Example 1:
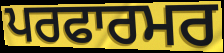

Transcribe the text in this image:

ਪਰਫਾਰਮਰ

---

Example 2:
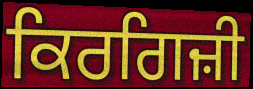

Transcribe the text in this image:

ਕਿਰਗਿਜ਼ੀ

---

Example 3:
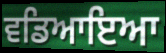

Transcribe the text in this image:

ਵਡਿਆਇਆ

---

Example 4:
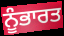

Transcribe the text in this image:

ਨੂੰਭਾਰਤ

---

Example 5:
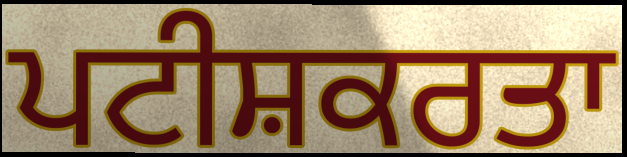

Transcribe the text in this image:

ਪਟੀਸ਼ਕਰਤਾ